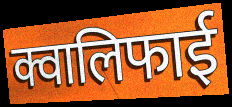
क्वालिफाई